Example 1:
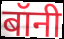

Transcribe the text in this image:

बॉनी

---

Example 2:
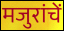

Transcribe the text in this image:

मजुरांचें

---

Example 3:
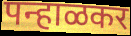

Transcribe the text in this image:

पन्हाळकर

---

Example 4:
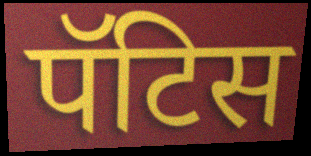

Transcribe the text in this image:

पॅटिस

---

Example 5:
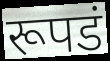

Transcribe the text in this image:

रूपडं